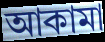
আকামা